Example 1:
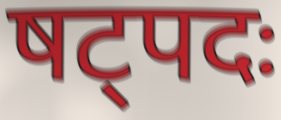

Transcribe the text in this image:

षट्पदः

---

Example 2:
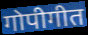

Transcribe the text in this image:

गोपीगीत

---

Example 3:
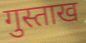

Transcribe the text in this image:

गुस्ताख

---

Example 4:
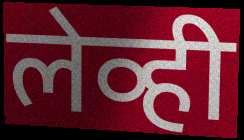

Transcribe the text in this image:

लेव्ही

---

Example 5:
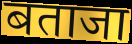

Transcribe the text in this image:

बताजा